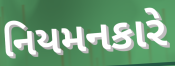
નિયમનકારે